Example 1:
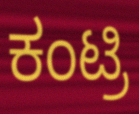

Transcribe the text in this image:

ಕಂಟ್ರಿ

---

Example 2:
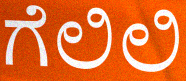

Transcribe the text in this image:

ಗೆಲಿಲಿ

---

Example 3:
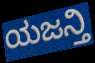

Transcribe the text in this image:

ಯಜನ್ತಿ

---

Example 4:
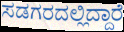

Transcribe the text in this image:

ಸಡಗರದಲ್ಲಿದ್ದಾರೆ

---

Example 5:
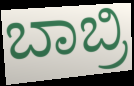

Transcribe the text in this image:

ಬಾಬ್ರಿ